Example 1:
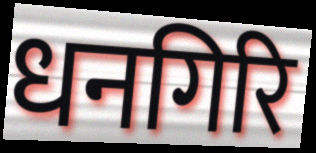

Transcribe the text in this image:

धनगिरि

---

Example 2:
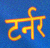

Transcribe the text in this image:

टर्नर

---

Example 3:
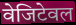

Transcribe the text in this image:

वेजिटेवल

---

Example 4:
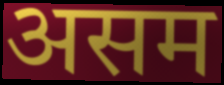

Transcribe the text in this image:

असम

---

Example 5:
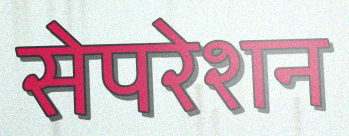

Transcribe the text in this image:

सेपरेशन